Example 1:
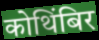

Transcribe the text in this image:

कोथिंबिर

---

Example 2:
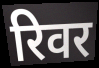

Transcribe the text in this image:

रिवर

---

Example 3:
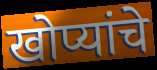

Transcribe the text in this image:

खोप्यांचे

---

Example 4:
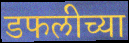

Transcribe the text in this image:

डफलीच्या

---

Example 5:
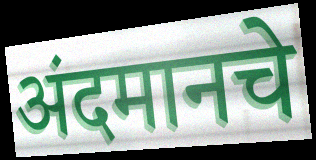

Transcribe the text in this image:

अंदमानचे